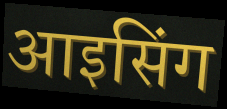
आइसिंग